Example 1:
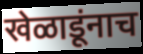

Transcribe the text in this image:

खेळाडूंनाच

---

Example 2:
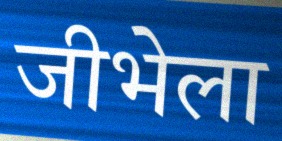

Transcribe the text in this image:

जीभेला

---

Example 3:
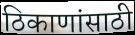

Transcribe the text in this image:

ठिकाणांसाठी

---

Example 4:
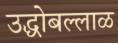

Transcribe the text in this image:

उद्धोबल्लाळ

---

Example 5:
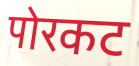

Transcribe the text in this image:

पोरकट